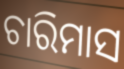
ଚାରିମାସ